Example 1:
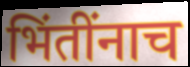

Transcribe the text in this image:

भिंतींनाच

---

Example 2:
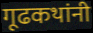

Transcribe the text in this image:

गूढकथांनी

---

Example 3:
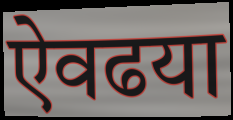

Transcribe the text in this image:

ऐवढया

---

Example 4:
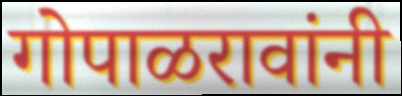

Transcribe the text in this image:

गोपाळरावांनी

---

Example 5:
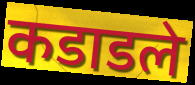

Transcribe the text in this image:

कडाडले